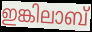
ഇങ്കിലാബ്